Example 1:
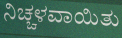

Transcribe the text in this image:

ನಿಚ್ಚಳವಾಯಿತು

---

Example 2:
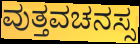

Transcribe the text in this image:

ವುತ್ತವಚನಸ್ಸ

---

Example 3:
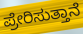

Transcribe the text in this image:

ಪ್ರೇರಿಸುತ್ತಾನೆ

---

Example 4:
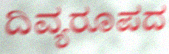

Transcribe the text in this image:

ದಿವ್ಯರೂಪದ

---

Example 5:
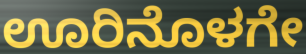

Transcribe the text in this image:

ಊರಿನೊಳಗೇ